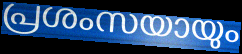
പ്രശംസയായും